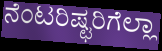
ನೆಂಟರಿಷ್ಟರಿಗೆಲ್ಲಾ